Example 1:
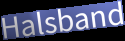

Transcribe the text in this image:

Halsband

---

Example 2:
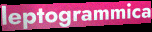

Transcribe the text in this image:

leptogrammica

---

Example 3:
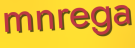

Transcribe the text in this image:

mnrega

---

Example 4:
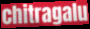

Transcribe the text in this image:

chitragalu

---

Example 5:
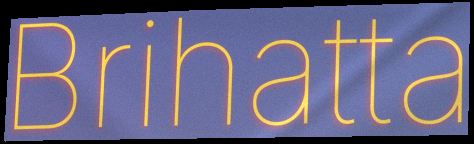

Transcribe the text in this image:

Brihatta